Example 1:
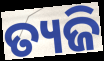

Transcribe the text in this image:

ତ୍ୟଜି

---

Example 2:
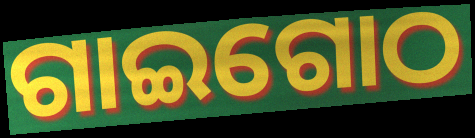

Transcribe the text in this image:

ଗାଇଗୋଠ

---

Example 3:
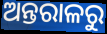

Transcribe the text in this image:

ଅନ୍ତରାଳରୁ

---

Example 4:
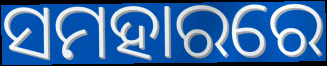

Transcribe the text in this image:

ସମହାରରେ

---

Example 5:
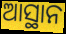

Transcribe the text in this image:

ଆସ୍ଥାନ